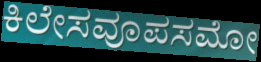
ಕಿಲೇಸವೂಪಸಮೋ